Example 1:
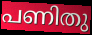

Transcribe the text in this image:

പണിതു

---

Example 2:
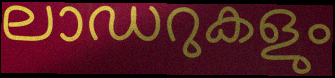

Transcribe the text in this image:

ലാഡറുകളും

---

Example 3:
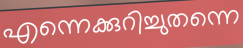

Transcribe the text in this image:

എന്നെക്കുറിച്ചുതന്നെ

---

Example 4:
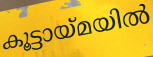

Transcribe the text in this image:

കൂട്ടായ്മയിൽ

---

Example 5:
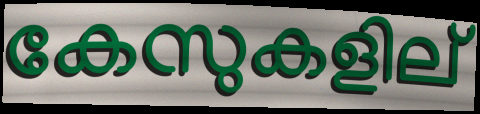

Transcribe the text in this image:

കേസുകളില്